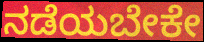
ನಡೆಯಬೇಕೇ